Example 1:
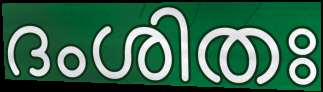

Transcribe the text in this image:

ദംശിതഃ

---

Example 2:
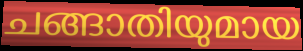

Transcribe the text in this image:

ചങ്ങാതിയുമായ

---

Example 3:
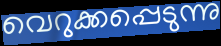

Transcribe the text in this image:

വെറുക്കപ്പെടുന്നു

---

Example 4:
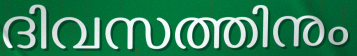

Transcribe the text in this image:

ദിവസത്തിനും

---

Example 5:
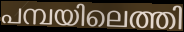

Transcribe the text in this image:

പമ്പയിലെത്തി